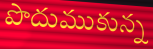
పొదుముకున్న